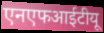
एनएफआईटीयू